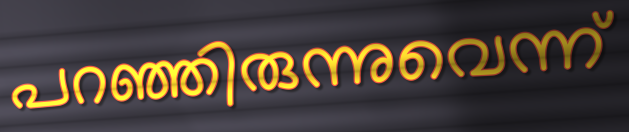
പറഞ്ഞിരുന്നുവെന്ന്